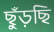
ছুঁড়ছি